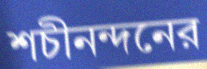
শচীনন্দনের